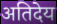
अतिदेय